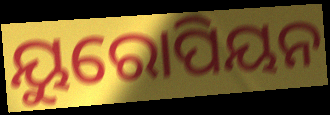
ୟୁରୋପିୟନ